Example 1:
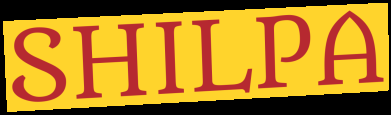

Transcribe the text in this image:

SHILPA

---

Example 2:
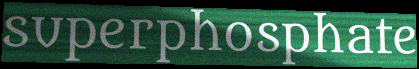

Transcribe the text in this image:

superphosphate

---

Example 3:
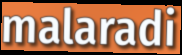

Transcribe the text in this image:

malaradi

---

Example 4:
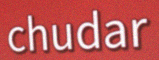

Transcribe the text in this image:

chudar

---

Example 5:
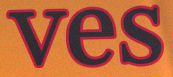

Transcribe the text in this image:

ves